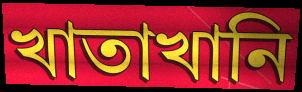
খাতাখানি